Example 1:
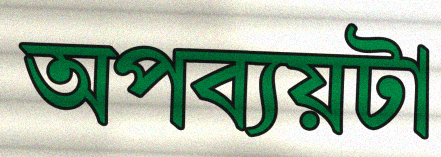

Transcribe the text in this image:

অপব্যয়টা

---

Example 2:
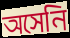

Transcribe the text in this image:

অসেনি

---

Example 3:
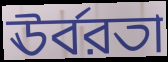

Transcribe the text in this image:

ঊর্বরতা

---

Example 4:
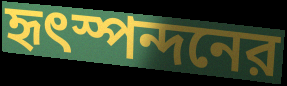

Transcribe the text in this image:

হৃৎস্পন্দনের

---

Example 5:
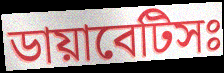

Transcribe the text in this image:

ডায়াবেটিসঃ